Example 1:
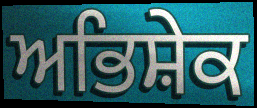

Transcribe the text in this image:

ਅਭਿਸ਼ੇਕ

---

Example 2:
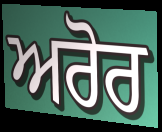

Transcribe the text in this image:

ਅਰੋਰ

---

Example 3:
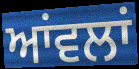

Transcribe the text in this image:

ਆਂਵਲਾਂ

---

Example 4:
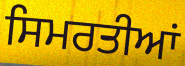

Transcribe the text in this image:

ਸਿਮਰਤੀਆਂ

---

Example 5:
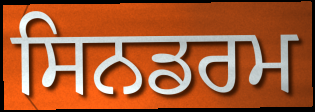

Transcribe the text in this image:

ਸਿਨਡਰਮ